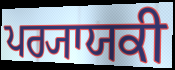
ਪਰ੍ਯਾਯਕੀ